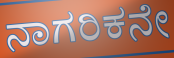
ನಾಗರಿಕನೇ